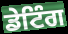
ਡੇਟਿੰਗ